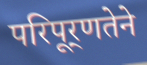
परिपूर्णतेने